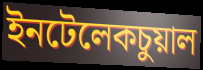
ইনটেলেকচুয়াল